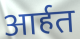
आर्हत